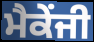
ਮੈਕੇਂਜੀ